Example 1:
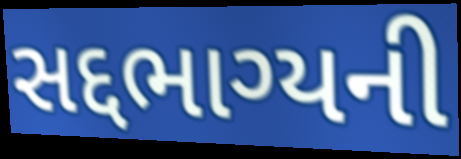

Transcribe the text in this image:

સદ્દભાગ્યની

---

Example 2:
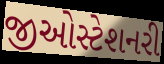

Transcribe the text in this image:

જીઓસ્ટેશનરી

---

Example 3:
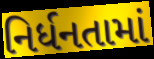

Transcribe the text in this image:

નિર્ધનતામાં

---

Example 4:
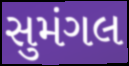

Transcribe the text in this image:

સુમંગલ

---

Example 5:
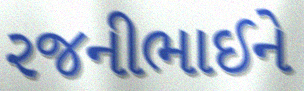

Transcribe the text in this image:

રજનીભાઈને